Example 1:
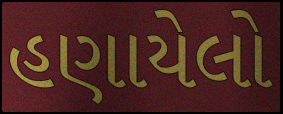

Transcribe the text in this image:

હણાયેલો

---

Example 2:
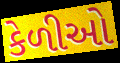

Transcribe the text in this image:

કેળીઓ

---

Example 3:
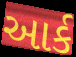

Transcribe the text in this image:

આર્ક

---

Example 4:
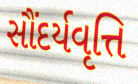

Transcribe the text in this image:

સૌંદર્યવૃત્તિ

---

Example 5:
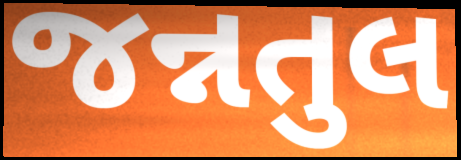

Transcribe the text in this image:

જન્નતુલ